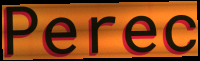
Perec